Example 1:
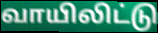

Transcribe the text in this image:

வாயிலிட்டு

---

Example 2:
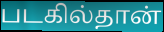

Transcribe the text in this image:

படகில்தான்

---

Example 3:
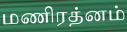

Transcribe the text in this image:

மணிரத்னம்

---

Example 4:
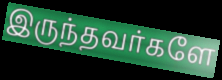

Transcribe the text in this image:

இருந்தவர்களே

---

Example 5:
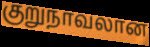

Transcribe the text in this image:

குறுநாவலான